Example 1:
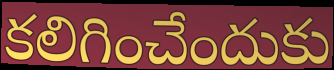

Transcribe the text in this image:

కలిగించేందుకు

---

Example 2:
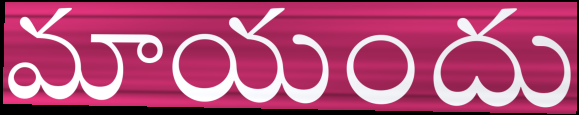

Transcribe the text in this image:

మాయందు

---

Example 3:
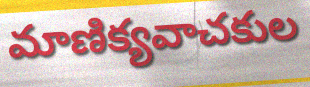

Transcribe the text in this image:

మాణిక్యవాచకుల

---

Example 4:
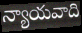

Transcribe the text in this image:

న్యాయవాది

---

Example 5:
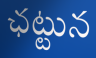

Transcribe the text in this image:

ఛట్టున